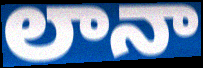
లానా